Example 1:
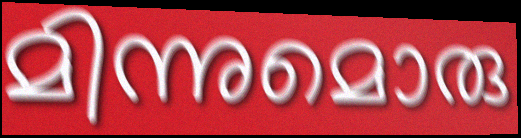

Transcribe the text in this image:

മിന്നുമൊരു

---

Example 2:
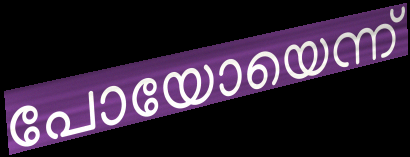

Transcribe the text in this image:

പോയോയെന്ന്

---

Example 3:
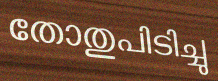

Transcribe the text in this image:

തോതുപിടിച്ചു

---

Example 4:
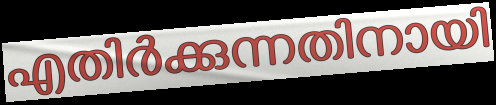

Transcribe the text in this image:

എതിർക്കുന്നതിനായി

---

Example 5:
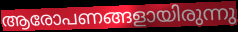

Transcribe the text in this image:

ആരോപണങ്ങളായിരുന്നു